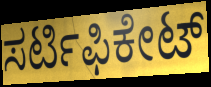
ಸರ್ಟಿಫಿಕೇಟ್